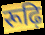
रूढ़ि